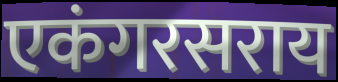
एकंगरसराय